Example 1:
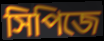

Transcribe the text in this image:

সিপিজে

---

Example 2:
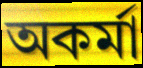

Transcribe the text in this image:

অকর্মা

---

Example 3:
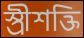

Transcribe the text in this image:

স্ত্রীশক্তি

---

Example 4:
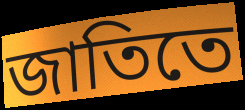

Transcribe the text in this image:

জাতিতে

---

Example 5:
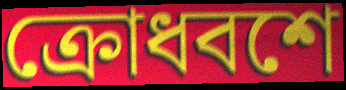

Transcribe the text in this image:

ক্রোধবশে